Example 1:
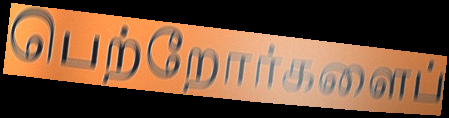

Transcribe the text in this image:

பெற்றோர்களைப்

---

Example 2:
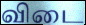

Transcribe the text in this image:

விடை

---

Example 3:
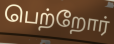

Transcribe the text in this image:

பெற்றோர்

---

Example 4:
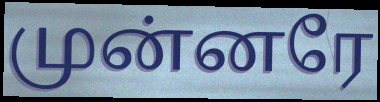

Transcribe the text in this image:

முன்னரே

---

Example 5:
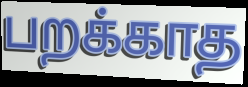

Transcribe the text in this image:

பறக்காத